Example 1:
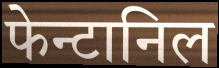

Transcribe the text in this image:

फेन्टानिल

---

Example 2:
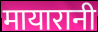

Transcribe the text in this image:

मायारानी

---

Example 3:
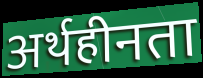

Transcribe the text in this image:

अर्थहीनता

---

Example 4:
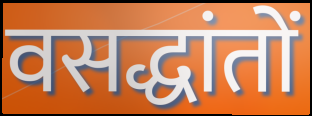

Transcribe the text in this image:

वसद्धांतों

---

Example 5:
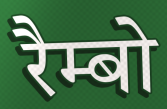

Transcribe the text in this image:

रैम्बो